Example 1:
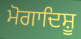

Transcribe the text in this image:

ਮੋਗਾਦਿਸ਼ੂ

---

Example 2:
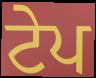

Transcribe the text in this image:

ਟੇਪ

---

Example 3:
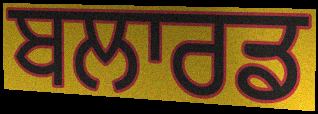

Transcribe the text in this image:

ਬਲਾਰਡ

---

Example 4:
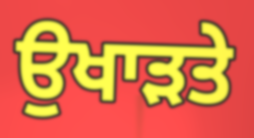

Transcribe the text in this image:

ਉਖਾੜਤੇ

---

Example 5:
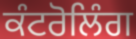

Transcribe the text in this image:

ਕੰਟਰੋਲਿੰਗ